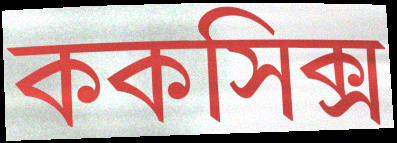
ককসিক্স